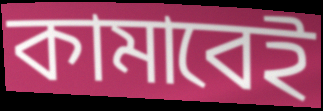
কামাবেই